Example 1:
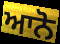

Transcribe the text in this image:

ਆਨੋ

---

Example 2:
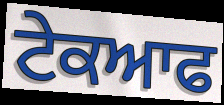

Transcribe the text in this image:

ਟੇਕਆਫ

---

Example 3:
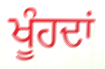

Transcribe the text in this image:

ਖੂੰਹਦਾਂ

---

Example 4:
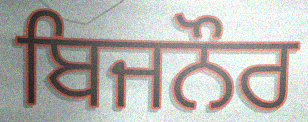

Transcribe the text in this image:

ਬਿਜਨੌਰ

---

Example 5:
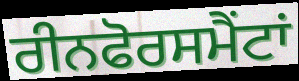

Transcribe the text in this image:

ਰੀਨਫੋਰਸਮੈਂਟਾਂ